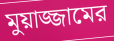
মুয়াজ্জামের